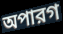
অপারগ